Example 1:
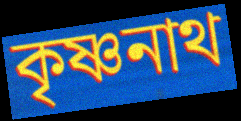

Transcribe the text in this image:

কৃষ্ণনাথ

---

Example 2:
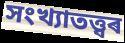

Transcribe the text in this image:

সংখ্যাতত্ত্বৰ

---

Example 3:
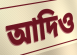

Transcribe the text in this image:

আদিও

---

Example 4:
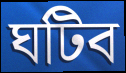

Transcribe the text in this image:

ঘটিব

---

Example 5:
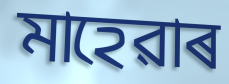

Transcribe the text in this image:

মাহেৱাৰ